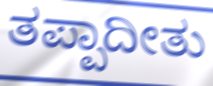
ತಪ್ಪಾದೀತು